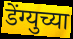
डेंग्युच्या